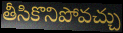
తీసికొనిపోవచ్చు